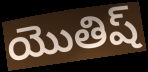
యొతిష్